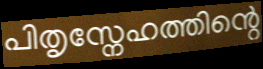
പിതൃസ്നേഹത്തിന്റെ